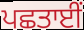
ਪਛਤਾਈਂ